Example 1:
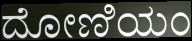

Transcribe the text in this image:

ದೋಣಿಯಂ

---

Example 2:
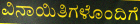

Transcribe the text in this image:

ವಿನಾಯಿತಿಗಳೊಂದಿಗೆ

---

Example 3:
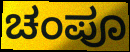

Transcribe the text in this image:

ಚಂಪೂ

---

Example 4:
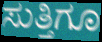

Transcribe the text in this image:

ಸುತ್ತಿಗೂ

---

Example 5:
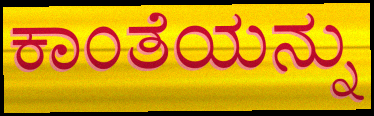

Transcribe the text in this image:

ಕಾಂತೆಯನ್ನು